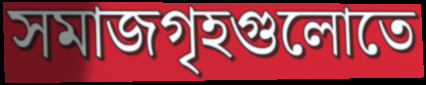
সমাজগৃহগুলোতে